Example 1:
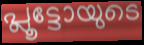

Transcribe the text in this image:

പ്ലൂട്ടോയുടെ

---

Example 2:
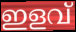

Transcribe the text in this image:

ഇളവ്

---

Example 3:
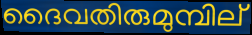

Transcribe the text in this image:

ദൈവതിരുമുമ്പില്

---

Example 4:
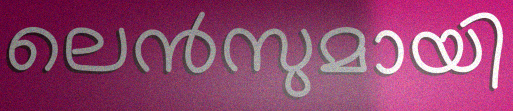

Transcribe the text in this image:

ലെൻസുമായി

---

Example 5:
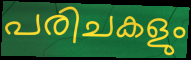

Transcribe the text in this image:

പരിചകളും